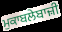
ਮੁਕਾਬਲੇਬਾਜ਼ੀ